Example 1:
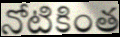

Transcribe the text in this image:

నోటికింత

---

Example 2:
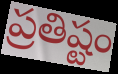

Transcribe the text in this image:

ప్రతిష్టం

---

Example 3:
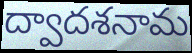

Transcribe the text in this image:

ద్వాదశనామ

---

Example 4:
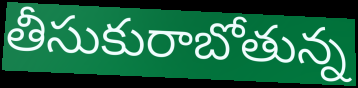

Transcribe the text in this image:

తీసుకురాబోతున్న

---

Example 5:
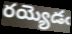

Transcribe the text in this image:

రయ్యెడఁ